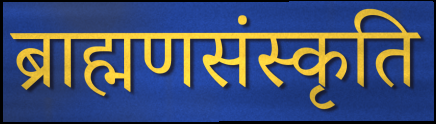
ब्राह्मणसंस्कृति